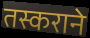
तस्कराने